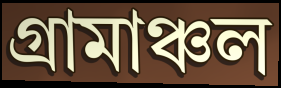
গ্রামাঞ্চল